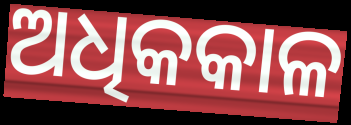
ଅଧିକକାଳ